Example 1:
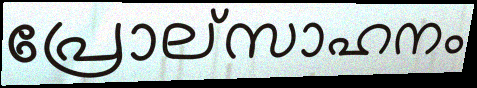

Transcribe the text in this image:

പ്രോല്സാഹനം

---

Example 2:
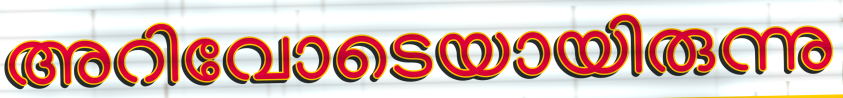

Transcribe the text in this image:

അറിവോടെയായിരുന്നു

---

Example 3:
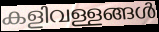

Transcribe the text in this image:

കളിവള്ളങ്ങൾ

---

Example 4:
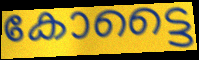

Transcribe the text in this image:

കോട്ടൈ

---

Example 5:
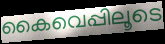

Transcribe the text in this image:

കൈവെപ്പിലൂടെ